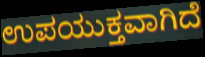
ಉಪಯುಕ್ತವಾಗಿದೆ